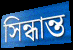
সিন্ধান্ত